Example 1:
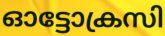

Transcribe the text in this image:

ഓട്ടോക്രസി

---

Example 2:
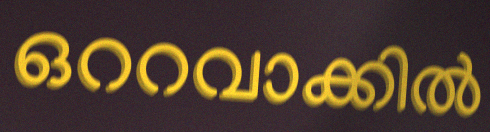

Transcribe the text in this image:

ഒററവാക്കിൽ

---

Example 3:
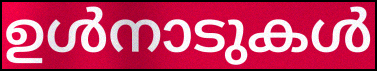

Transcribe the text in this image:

ഉൾനാടുകൾ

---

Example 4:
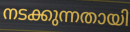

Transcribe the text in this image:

നടക്കുന്നതായി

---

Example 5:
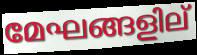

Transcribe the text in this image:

മേഘങ്ങളില്